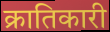
क्रातिकारी